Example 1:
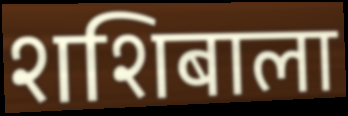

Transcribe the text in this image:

शशिबाला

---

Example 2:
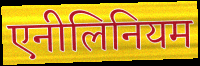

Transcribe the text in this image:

एनीलिनियम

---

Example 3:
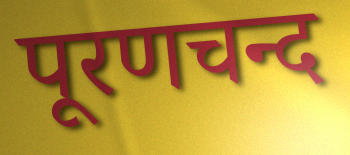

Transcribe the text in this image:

पूरणचन्द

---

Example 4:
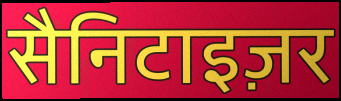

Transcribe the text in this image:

सैनिटाइज़र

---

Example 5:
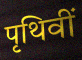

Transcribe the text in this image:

पृथिवीं